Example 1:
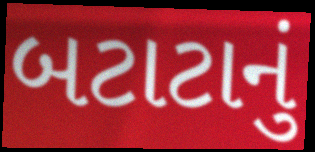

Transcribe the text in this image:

બટાટાનું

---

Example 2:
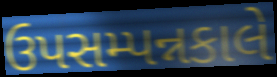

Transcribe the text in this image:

ઉપસમ્પન્નકાલે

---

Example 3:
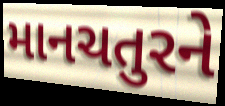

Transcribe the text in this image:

માનચતુરને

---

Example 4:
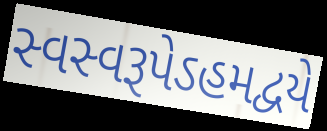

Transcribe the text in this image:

સ્વસ્વરૂપેઽહમદ્વયે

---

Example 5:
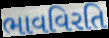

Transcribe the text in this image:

ભાવવિરતિ